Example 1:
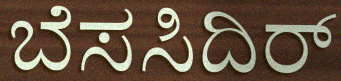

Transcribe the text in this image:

ಬೆಸಸಿದಿರ್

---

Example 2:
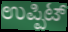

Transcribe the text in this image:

ಉಪ್ಪಿಟ್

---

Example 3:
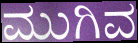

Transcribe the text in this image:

ಮುಗಿವ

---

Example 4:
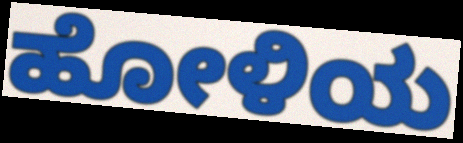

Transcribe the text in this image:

ಹೋಳಿಯ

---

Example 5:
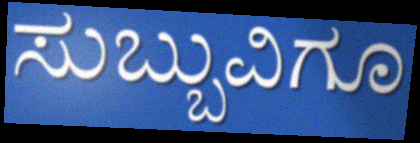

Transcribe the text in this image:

ಸುಬ್ಬುವಿಗೂ